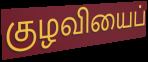
குழவியைப்